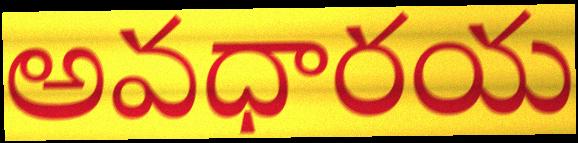
అవధారయ